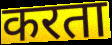
करता